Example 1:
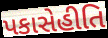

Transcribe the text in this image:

પકાસેહીતિ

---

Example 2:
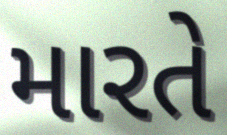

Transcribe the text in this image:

મારતે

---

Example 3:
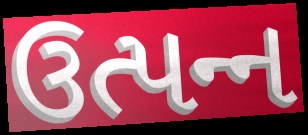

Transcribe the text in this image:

ઉત્પન્‍ન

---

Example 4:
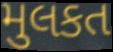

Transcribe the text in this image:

મુલકત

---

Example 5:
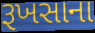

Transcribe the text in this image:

રૂખસાના